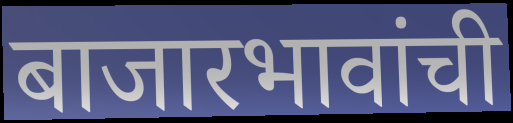
बाजारभावांची